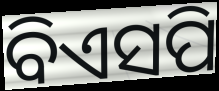
ବିଏସପି